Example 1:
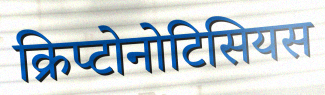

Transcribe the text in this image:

क्रिप्टोनोटिसियस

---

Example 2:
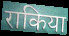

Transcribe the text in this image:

राकिया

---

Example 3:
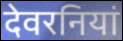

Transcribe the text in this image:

देवरनियां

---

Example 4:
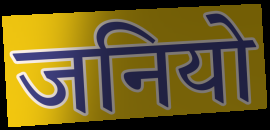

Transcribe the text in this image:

जनियो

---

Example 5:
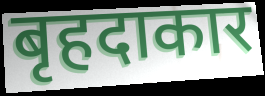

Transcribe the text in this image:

बृहदाकार